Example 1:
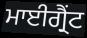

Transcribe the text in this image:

ਮਾਈਗ੍ਰੈਂਟ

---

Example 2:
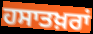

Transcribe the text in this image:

ਹਸਾਤਖ਼ਰਾਂ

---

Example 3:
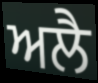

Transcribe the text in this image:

ਅਲੈ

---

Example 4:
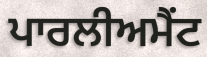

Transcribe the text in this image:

ਪਾਰਲੀਅਮੈਂਟ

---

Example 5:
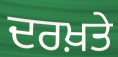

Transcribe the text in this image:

ਦਰਖ਼ਤੇ